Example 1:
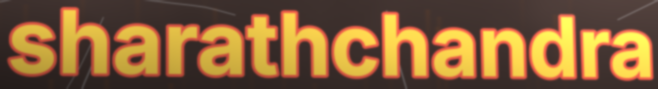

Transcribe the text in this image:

sharathchandra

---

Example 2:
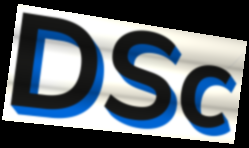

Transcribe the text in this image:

DSc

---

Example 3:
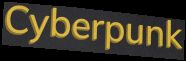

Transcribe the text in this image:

Cyberpunk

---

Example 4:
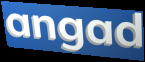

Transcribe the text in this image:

angad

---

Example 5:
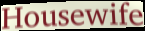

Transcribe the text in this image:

Housewife